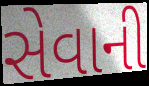
સેવાની